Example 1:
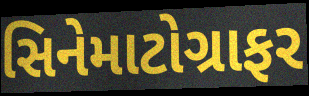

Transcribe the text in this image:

સિનેમાટોગ્રાફર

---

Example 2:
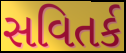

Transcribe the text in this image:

સવિતર્ક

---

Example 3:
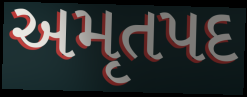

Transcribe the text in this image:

અમૃતપદ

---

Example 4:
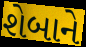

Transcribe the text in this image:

શેબાને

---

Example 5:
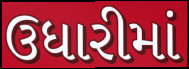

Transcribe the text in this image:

ઉધારીમાં